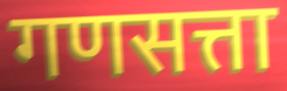
गणसत्ता